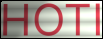
HOTI